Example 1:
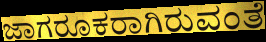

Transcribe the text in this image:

ಜಾಗರೂಕರಾಗಿರುವಂತೆ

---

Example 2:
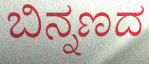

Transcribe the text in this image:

ಬಿನ್ನಣದ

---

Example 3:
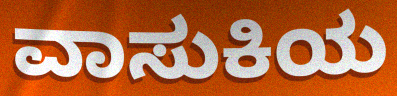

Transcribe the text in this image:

ವಾಸುಕಿಯ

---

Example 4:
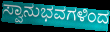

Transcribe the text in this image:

ಸ್ವಾನುಭವಗಳಿಂದ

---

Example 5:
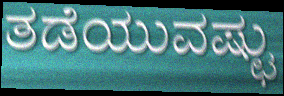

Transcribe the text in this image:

ತಡೆಯುವಷ್ಟು